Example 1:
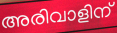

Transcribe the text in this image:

അരിവാളിന്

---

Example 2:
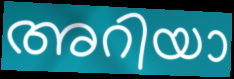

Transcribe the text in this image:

അറിയാ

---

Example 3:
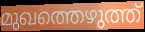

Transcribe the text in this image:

മുഖത്തെഴുത്ത്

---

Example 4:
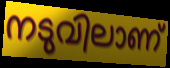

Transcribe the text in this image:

നടുവിലാണ്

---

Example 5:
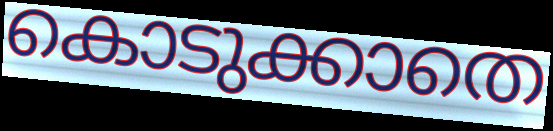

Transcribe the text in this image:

കൊടുക്കാതെ